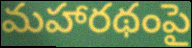
మహారథంపై